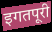
इगतपूरी